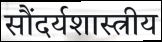
सौंदर्यशास्त्रीय